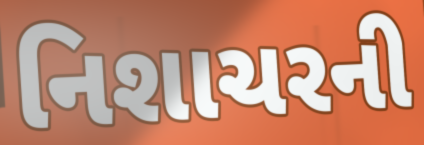
નિશાચરની